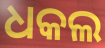
ଧକଲ